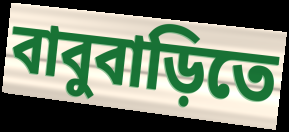
বাবুবাড়িতে